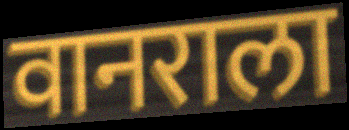
वानराला